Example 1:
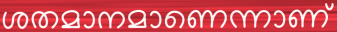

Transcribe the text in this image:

ശതമാനമാണെന്നാണ്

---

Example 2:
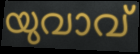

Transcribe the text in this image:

യുവാവ്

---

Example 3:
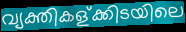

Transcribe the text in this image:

വ്യക്തികള്ക്കിടയിലെ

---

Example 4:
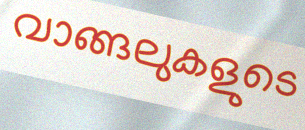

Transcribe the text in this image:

വാങ്ങലുകളുടെ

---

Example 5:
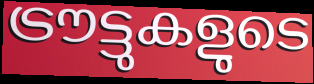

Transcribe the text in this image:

ട്രൗട്ടുകളുടെ